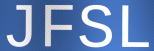
JFSL